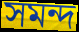
সমন্দ